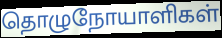
தொழுநோயாளிகள்